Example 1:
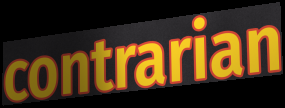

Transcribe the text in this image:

contrarian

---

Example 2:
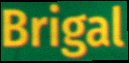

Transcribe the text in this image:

Brigal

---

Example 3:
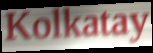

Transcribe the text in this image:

Kolkatay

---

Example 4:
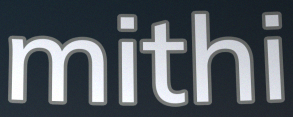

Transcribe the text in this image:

mithi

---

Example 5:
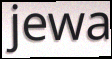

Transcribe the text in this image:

jewa